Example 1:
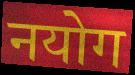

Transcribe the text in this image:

नयोग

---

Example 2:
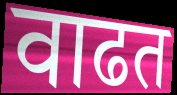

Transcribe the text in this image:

वाढत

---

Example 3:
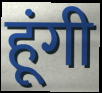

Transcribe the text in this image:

हूंगी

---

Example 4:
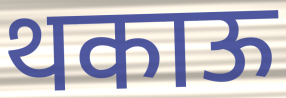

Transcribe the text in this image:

थकाऊ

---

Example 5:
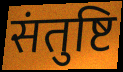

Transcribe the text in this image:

संतुष्टि